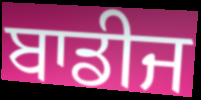
ਬਾਡੀਜ